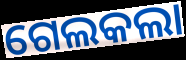
ଗେଲକଲା